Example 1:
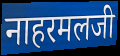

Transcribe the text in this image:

नाहरमलजी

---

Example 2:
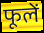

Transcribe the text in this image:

फूलें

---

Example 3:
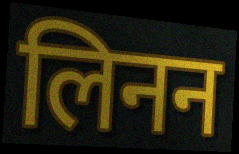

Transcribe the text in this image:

लिनन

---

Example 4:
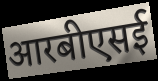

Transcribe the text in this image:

आरबीएसई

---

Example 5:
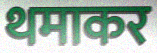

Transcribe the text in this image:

थमाकर